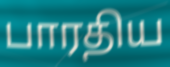
பாரதிய